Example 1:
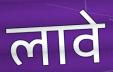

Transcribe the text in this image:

लावे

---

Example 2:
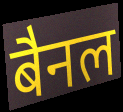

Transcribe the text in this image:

बैनल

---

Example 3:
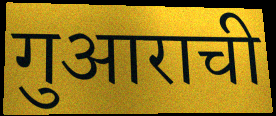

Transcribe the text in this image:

गुआराची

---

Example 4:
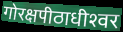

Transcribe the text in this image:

गोरक्षपीठाधीश्वर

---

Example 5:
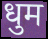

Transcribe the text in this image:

धुम